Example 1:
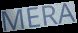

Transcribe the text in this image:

MERA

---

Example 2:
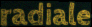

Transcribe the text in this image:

radiale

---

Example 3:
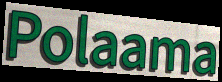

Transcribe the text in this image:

Polaama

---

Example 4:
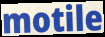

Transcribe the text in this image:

motile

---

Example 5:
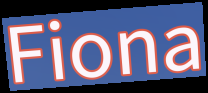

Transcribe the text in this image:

Fiona